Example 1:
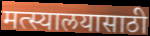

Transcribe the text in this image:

मत्स्यालयासाठी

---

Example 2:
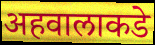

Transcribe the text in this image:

अहवालाकडे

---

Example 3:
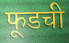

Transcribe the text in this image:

फूडची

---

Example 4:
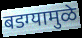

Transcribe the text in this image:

बडग्यामुळे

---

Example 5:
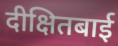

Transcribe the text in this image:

दीक्षितबाई